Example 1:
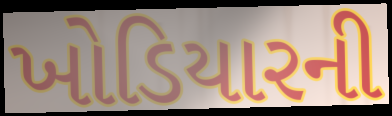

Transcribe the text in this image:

ખોડિયારની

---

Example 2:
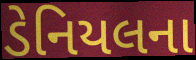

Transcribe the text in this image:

ડેનિયલના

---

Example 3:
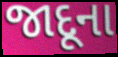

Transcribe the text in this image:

જાદૂના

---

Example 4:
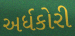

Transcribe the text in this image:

અર્ધકોરી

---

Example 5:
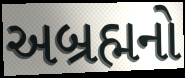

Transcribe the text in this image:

અબ્રહ્મનો